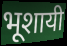
भूशायी